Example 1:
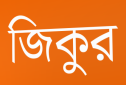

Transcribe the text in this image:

জিকুর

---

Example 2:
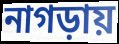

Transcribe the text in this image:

নাগড়ায়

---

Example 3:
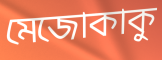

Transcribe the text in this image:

মেজোকাকু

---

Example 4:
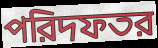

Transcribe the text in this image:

পরিদফতর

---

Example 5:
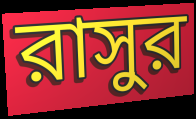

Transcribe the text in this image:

রাসুর